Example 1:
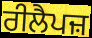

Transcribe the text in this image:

ਰੀਲੈਪਜ਼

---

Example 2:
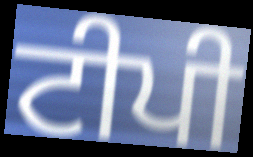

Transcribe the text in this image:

ਟੀਪੀ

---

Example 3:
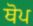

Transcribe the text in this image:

ਥੋਪ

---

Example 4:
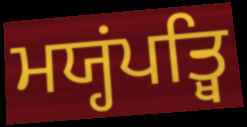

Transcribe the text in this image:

ਮਯ੍ਹਂਪਤ੍ਥਿ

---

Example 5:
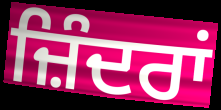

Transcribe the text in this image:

ਜ਼ਿੰਦਰਾਂ